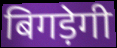
बिगड़ेगी